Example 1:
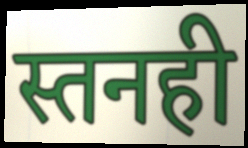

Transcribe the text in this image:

स्तनही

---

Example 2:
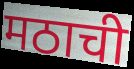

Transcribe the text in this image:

मठाची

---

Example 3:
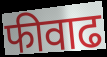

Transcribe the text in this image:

फीवाढ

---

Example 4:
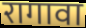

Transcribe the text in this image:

रागावा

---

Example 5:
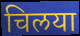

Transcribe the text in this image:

चिलया